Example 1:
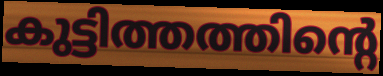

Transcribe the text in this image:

കുട്ടിത്തത്തിന്റെ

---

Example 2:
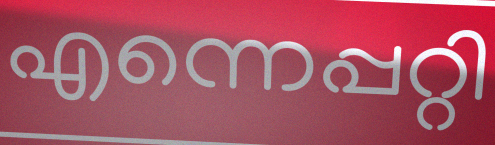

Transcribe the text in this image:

എന്നെപ്പറ്റി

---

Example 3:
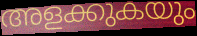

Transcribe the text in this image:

അളക്കുകയും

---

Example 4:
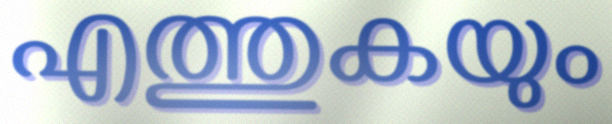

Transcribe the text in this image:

എത്തുകയും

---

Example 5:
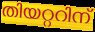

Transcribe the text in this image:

തിയറ്ററിന്